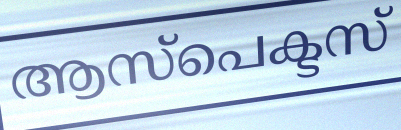
ആസ്പെക്ടസ്